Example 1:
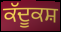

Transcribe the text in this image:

ਕੱਦੂਕਸ਼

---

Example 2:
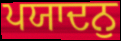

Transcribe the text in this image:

ਪਯਾਦਨੁ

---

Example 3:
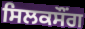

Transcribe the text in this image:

ਸਿਲਕਸੌਂਗ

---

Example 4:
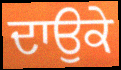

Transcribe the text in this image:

ਦਾਉਕੇ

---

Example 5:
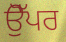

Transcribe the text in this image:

ਉੋੱਪਰ